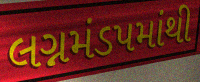
લગ્નમંડપમાંથી